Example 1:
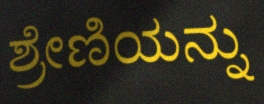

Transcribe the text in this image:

ಶ್ರೇಣಿಯನ್ನು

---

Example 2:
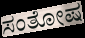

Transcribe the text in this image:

ಸಂತೋಷ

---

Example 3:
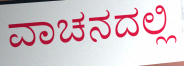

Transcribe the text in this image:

ವಾಚನದಲ್ಲಿ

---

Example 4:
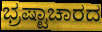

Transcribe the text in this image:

ಭ್ರಷ್ಟಾಚಾರದ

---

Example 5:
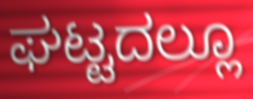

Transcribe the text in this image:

ಘಟ್ಟದಲ್ಲೂ